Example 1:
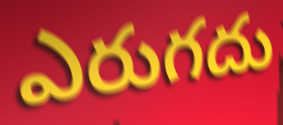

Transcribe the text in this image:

ఎరుగదు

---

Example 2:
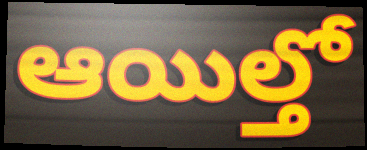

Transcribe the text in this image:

ఆయిల్తో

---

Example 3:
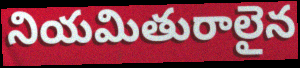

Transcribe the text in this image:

నియమితురాలైన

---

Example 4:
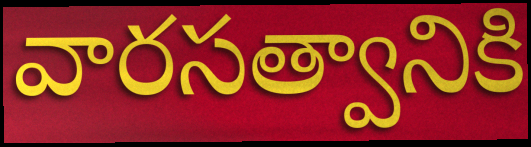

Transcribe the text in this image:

వారసత్వానికి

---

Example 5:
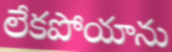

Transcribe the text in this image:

లేకపోయాను